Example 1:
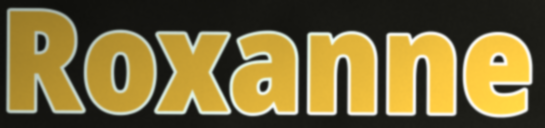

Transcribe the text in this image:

Roxanne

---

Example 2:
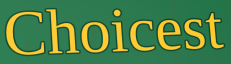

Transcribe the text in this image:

Choicest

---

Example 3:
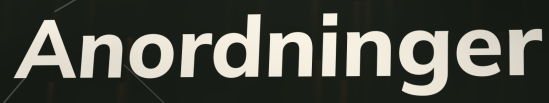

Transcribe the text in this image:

Anordninger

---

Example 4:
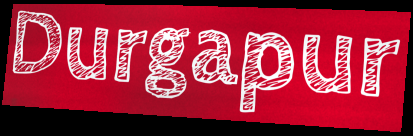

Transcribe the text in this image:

Durgapur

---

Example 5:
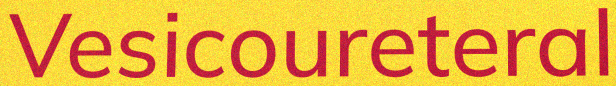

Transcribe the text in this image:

Vesicoureteral